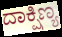
ದಾಕ್ಷಿಣ್ಯ